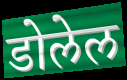
डोलेल